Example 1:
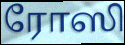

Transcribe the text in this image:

ரோஸி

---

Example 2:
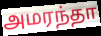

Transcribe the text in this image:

அமரந்தா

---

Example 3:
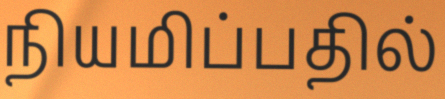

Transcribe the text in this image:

நியமிப்பதில்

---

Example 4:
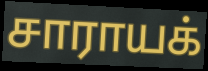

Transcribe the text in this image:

சாராயக்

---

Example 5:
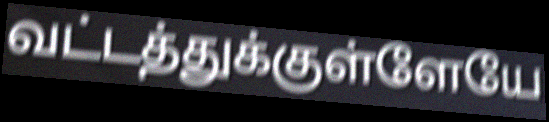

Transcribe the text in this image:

வட்டத்துக்குள்ளேயே